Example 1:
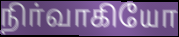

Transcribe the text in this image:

நிர்வாகியோ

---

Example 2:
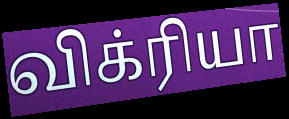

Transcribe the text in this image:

விக்ரியா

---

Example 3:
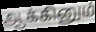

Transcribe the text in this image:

ஆக்கினும்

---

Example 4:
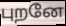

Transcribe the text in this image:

புறனே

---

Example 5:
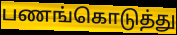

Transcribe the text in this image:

பணங்கொடுத்து